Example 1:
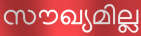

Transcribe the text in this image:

സൗഖ്യമില്ല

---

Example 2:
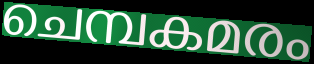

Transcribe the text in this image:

ചെമ്പകമരം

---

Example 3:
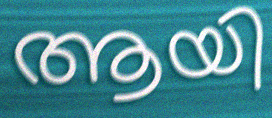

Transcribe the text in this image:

ആയി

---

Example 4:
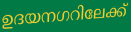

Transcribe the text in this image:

ഉദയനഗറിലേക്ക്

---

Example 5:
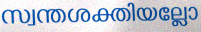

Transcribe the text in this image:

സ്വന്തശക്തിയല്ലോ